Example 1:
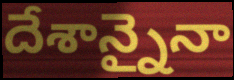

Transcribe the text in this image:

దేశాన్నైనా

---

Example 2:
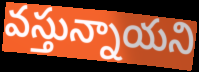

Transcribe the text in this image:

వస్తున్నాయని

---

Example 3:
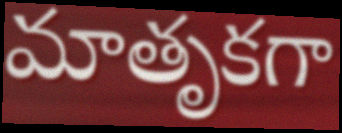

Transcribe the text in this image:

మాతృకగా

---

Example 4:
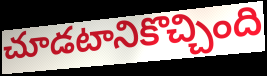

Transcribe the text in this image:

చూడటానికొచ్చింది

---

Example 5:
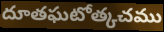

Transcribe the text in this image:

దూతఘటోత్కచము